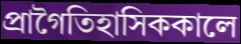
প্রাগৈতিহাসিককালে